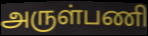
அருள்பணி